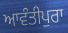
ਆਵੰਤੀਪੁਰਾ